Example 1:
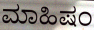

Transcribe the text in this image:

ಮಾಹಿಷಂ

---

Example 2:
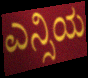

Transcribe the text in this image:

ಎನ್ಸಿಯ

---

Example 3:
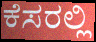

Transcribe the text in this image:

ಕೆಸರಲ್ಲಿ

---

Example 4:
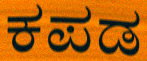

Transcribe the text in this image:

ಕಪಡ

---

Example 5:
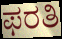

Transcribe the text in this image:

ಫರತಿ